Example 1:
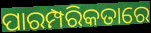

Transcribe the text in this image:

ପାରମ୍ପରିକତାରେ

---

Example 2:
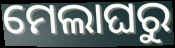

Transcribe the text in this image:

ମେଲାଘରୁ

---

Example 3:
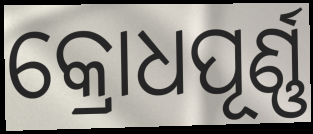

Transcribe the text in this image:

କ୍ରୋଧପୂର୍ଣ୍ଣ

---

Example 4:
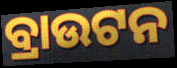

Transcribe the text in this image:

ବ୍ରାଉଟନ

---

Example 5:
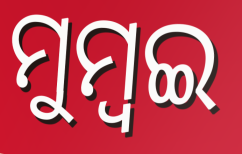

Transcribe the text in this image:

ମୁମ୍ୱଇ